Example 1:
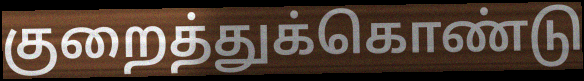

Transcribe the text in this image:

குறைத்துக்கொண்டு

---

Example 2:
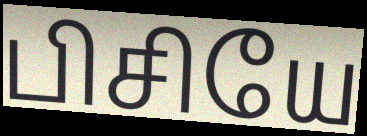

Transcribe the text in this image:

பிசியே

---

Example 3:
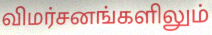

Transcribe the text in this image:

விமர்சனங்களிலும்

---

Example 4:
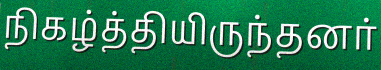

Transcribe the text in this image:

நிகழ்த்தியிருந்தனர்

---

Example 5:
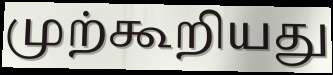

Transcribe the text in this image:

முற்கூறியது